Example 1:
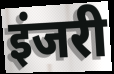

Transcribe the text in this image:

इंजरी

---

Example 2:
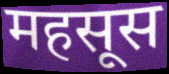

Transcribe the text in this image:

महसूस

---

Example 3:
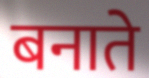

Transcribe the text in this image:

बनाते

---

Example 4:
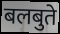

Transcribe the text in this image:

बलबुते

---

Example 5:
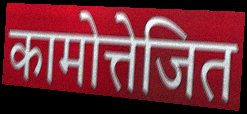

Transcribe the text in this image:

कामोत्तेजित